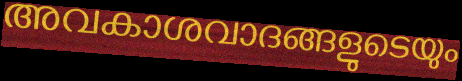
അവകാശവാദങ്ങളുടെയും